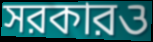
সরকারও